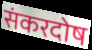
संकरदोष